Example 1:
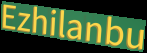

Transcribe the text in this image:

Ezhilanbu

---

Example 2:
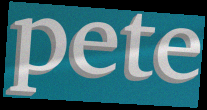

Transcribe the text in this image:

pete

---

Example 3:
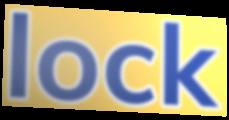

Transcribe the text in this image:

lock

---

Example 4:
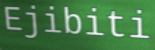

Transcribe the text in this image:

Ejibiti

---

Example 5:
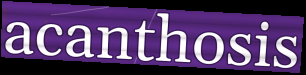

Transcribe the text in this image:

acanthosis